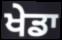
ਖੇਡਾ